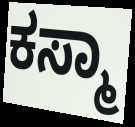
ಕಸ್ಮಾ